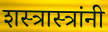
शस्त्रास्त्रांनी